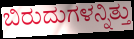
ಬಿರುದುಗಳನ್ನಿತ್ತು